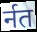
र्नत